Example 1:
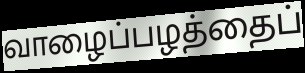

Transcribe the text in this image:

வாழைப்பழத்தைப்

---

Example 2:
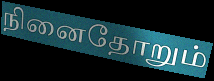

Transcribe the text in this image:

நினைதோறும்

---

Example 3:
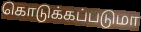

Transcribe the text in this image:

கொடுக்கப்படுமா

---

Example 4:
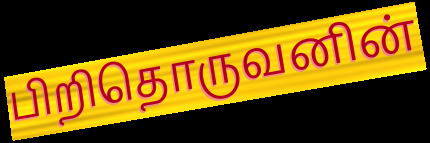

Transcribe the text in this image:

பிறிதொருவனின்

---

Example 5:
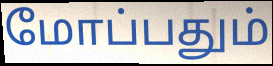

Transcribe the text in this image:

மோப்பதும்